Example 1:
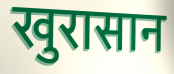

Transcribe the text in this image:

खुरासान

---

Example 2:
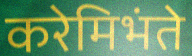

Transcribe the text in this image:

करेमिभंते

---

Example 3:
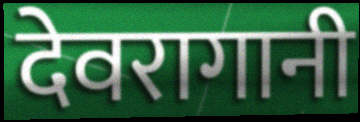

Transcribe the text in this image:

देवरागानी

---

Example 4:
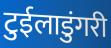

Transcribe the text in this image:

टुईलाडुंगरी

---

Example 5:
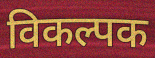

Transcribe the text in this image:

विकल्पक